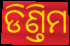
ଡିଣ୍ତିମ